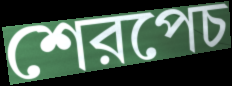
শেরপেচ